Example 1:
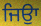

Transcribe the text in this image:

ਜਿਉਾ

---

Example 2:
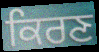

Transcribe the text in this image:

ਕਿਰਣ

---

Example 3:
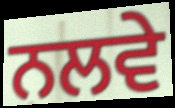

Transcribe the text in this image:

ਨਲਵੇ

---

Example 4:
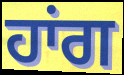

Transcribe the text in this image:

ਹਾਂਗ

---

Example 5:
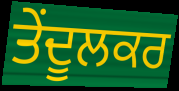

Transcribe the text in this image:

ਤੇਂਦੂਲਕਰ